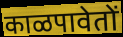
काळपावेतों